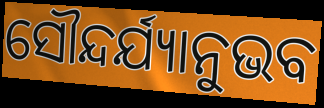
ସୌନ୍ଦର୍ଯ୍ୟାନୁଭବ